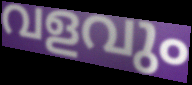
വളവും